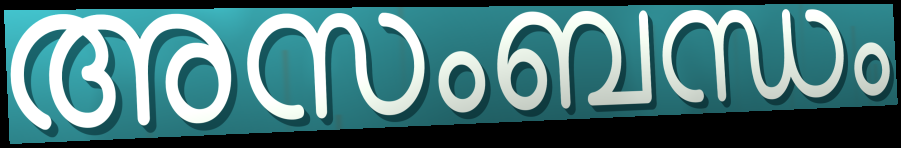
അസംബന്ധം